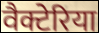
वैक्टेरिया